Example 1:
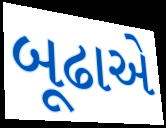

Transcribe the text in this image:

બૂઢાએ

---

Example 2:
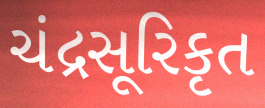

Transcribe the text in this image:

ચંદ્રસૂરિકૃત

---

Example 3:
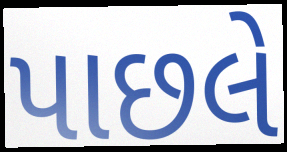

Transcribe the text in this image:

પાછલે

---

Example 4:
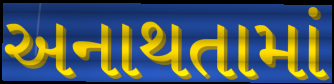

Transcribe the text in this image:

અનાથતામાં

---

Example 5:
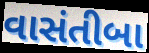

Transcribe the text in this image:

વાસંતીબા